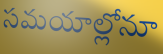
సమయాల్లోనూ